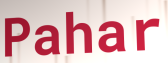
Pahar